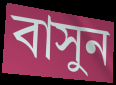
বাসুন